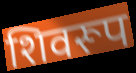
शिवरूप